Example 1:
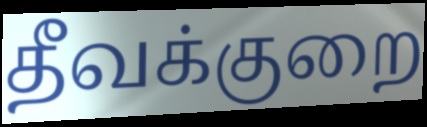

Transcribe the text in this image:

தீவக்குறை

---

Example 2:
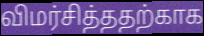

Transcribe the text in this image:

விமர்சித்ததற்காக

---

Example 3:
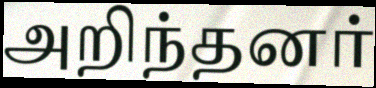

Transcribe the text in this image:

அறிந்தனர்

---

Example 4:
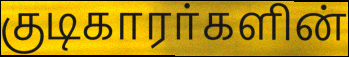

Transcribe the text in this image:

குடிகாரர்களின்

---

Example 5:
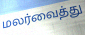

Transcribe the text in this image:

மலர்வைத்து